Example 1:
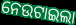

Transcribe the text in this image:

ନେଉଟାଇଲା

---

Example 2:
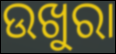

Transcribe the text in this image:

ଉଖୁରା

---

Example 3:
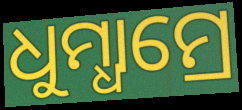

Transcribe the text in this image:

ଧୁମ୍ଧାମ୍ରେ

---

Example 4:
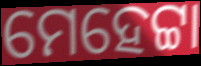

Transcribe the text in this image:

ମେହେଟ୍ଟା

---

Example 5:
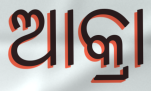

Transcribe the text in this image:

ଆକ୍ରା